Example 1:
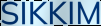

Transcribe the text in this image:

SIKKIM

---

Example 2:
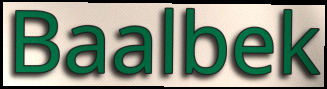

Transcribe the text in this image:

Baalbek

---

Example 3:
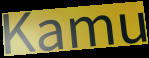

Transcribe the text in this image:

Kamu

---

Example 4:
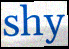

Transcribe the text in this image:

shy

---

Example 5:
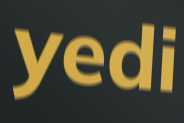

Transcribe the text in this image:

yedi